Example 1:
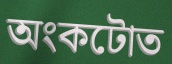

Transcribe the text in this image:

অংকটোত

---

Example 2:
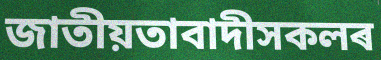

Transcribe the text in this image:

জাতীয়তাবাদীসকলৰ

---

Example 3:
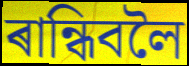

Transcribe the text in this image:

ৰান্ধিবলৈ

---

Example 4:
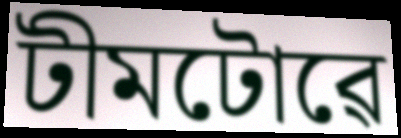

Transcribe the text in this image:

টীমটোৱে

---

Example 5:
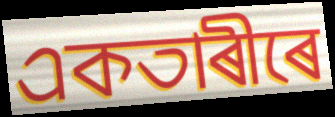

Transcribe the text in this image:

একতাৰীৰে